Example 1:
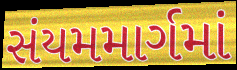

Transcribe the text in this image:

સંયમમાર્ગમાં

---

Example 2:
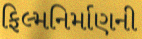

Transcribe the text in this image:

ફિલ્મનિર્માણની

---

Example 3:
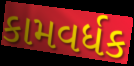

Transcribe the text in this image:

કામવર્ધક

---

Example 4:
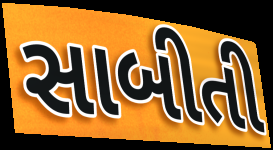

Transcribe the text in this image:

સાબીતી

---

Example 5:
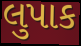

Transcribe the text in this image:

લુપાક